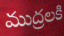
ముద్రలకి